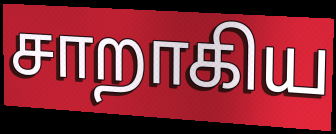
சாறாகிய